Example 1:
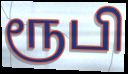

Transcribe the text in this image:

ரூபி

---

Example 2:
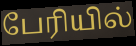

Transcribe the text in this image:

பேரியில்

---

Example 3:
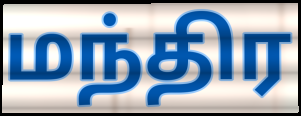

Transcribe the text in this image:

மந்திர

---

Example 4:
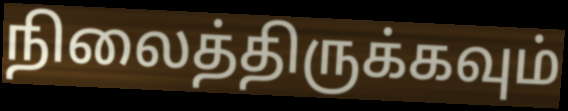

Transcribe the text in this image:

நிலைத்திருக்கவும்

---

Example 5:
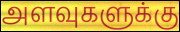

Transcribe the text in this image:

அளவுகளுக்கு